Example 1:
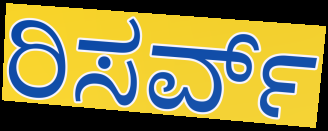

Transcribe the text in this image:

ರಿಸರ್ವ್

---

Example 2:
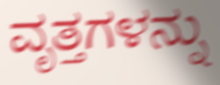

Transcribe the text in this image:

ವೃತ್ತಗಳನ್ನು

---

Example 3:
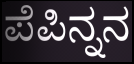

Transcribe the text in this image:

ಪೆಪಿನ್ನನ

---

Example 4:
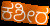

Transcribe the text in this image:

ಕಶೀರ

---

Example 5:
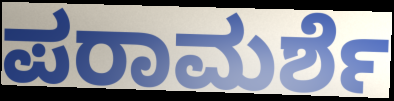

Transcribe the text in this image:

ಪರಾಮರ್ಶೆ